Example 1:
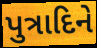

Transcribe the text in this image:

પુત્રાદિને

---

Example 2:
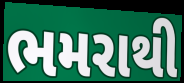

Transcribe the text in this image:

ભમરાથી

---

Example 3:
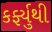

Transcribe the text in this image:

કર્ફ્યુથી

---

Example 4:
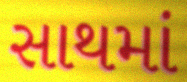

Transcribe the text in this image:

સાથમાં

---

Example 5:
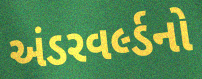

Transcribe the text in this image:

અંડરવર્લ્ડનો